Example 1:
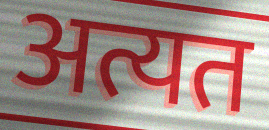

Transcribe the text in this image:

अत्यत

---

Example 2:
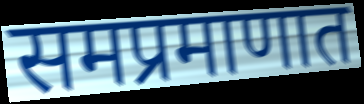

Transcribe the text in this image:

समप्रमाणात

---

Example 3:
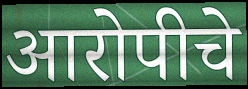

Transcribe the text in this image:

आरोपीचे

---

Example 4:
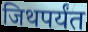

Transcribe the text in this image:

जिथपर्यंत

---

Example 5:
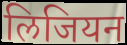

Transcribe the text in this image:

लिजियन